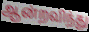
ஆன்றவிந்து